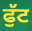
ਫੁੱਟ